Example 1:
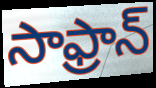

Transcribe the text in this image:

సాఫ్రాన్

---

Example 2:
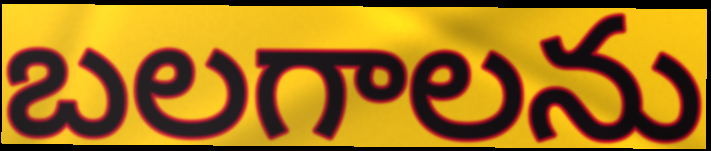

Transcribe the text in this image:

బలగాలను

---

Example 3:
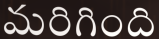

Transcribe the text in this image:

మరిగింది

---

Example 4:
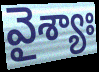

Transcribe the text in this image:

వైశ్యాః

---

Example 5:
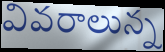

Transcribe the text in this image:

వివరాలున్న